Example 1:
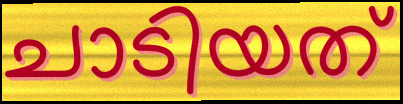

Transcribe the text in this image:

ചാടിയത്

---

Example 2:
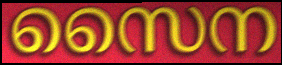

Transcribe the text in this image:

സൈന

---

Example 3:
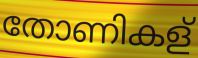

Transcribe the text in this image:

തോണികള്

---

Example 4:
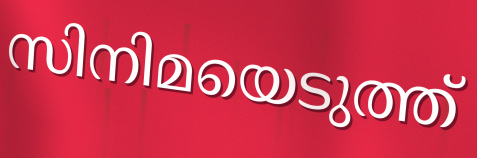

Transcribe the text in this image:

സിനിമയെടുത്ത്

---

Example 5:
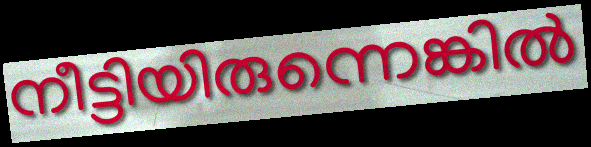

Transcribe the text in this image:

നീട്ടിയിരുന്നെങ്കിൽ